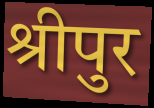
श्रीपुर